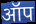
ऑप